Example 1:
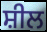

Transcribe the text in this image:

ਸ਼ੀਲ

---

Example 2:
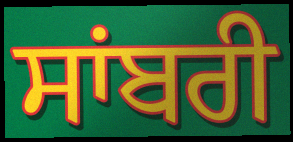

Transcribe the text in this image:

ਸਾਂਬਰੀ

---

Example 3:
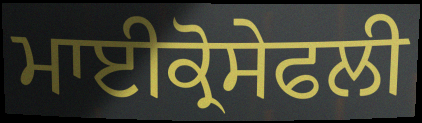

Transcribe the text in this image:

ਮਾਈਕ੍ਰੋਸੇਫਲੀ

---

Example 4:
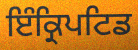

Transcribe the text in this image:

ਇੰਕ੍ਰਿਪਟਿਡ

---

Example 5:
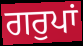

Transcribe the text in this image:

ਗਰੁਪਾਂ